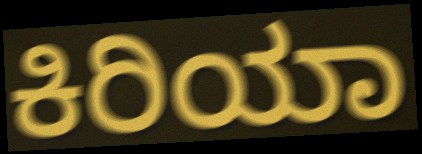
ಕಿರಿಯಾ